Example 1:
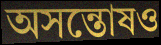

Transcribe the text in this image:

অসন্তোষও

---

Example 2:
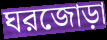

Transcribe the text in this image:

ঘরজোড়া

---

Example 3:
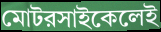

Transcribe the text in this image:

মোটরসাইকেলেই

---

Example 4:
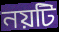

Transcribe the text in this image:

নয়টি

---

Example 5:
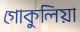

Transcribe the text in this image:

গোকুলিয়া